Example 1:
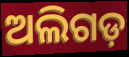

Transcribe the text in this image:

ଅଲିଗଡ଼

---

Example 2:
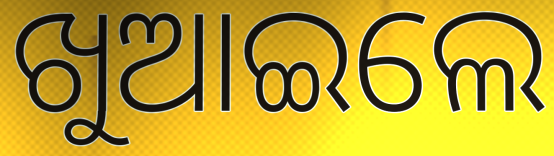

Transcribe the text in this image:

ଖୁଆଇଲେ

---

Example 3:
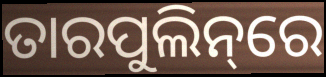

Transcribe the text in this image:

ତାରପୁଲିନ୍‌ରେ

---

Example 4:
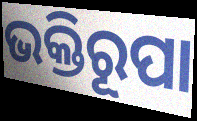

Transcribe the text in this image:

ଭକ୍ତିରୂପା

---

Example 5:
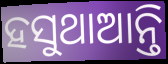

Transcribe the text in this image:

ହସୁଥାଆନ୍ତି